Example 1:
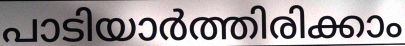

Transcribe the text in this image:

പാടിയാർത്തിരിക്കാം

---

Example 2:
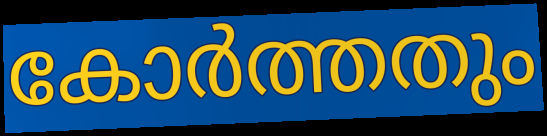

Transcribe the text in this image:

കോർത്തതും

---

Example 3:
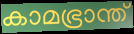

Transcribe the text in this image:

കാമഭ്രാന്ത്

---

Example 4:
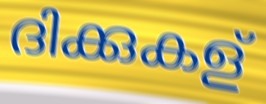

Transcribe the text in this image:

ദിക്കുകള്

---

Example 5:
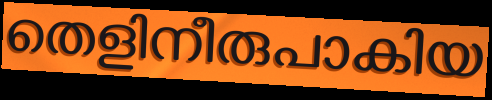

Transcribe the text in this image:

തെളിനീരുപാകിയ